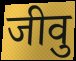
जीवु